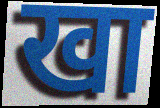
खा